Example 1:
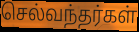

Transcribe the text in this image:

செல்வந்தர்கள்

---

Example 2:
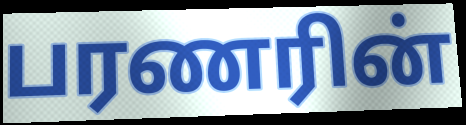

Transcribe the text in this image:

பரணரின்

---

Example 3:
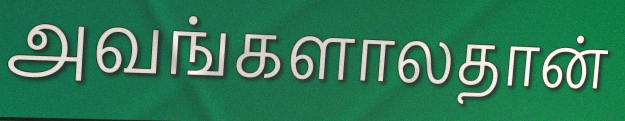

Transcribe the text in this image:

அவங்களாலதான்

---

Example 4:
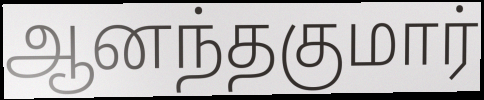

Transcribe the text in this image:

ஆனந்தகுமார்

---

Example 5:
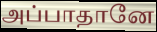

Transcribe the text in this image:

அப்பாதானே